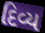
દિવ્ય